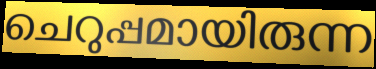
ചെറുപ്പമായിരുന്ന